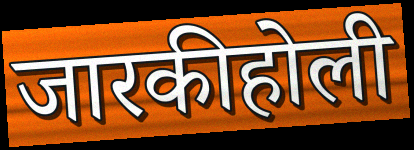
जारकीहोली